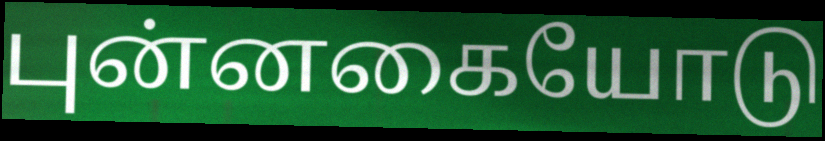
புன்னகையோடு